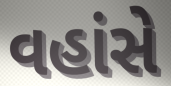
વહાંસે